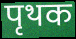
पृथक